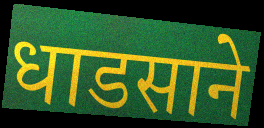
धाडसाने